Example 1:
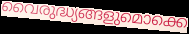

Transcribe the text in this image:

വൈരുദ്ധ്യങ്ങളുമൊക്കെ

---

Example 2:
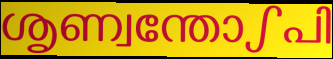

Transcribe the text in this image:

ശൃണ്വന്തോഽപി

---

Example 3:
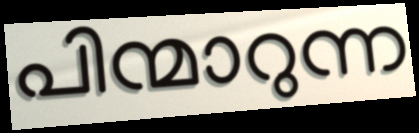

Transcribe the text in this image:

പിന്മാറുന്ന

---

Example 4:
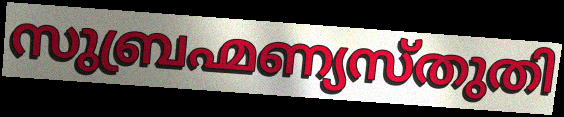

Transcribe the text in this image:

സുബ്രഹ്മണ്യസ്തുതി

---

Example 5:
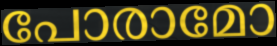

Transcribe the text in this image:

പോരാമോ